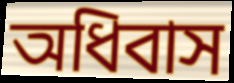
অধিবাস